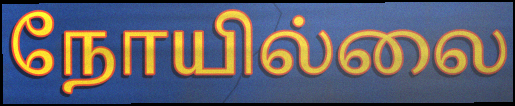
நோயில்லை